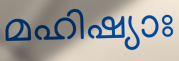
മഹിഷ്യാഃ